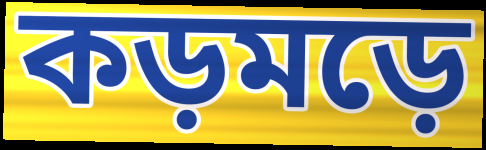
কড়মড়ে